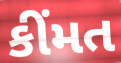
કીંમત